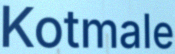
Kotmale